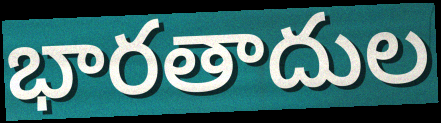
భారతాదుల